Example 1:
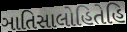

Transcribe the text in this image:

ઞાતિસાલોહિતેહિ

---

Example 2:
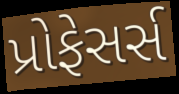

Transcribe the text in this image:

પ્રોફેસર્સ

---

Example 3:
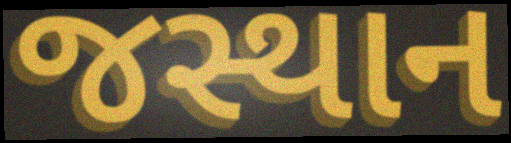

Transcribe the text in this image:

જસ્થાન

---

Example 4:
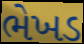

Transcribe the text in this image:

ભેખડ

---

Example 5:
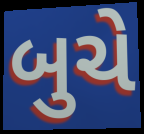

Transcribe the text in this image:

બુચે